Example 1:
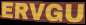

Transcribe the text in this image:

ERVGU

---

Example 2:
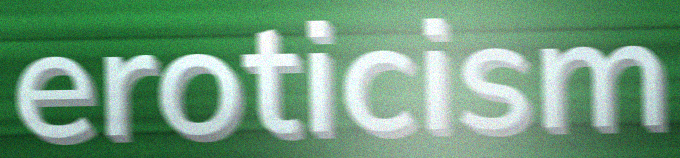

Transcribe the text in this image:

eroticism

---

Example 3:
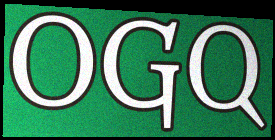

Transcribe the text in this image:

OGQ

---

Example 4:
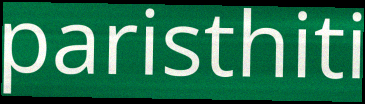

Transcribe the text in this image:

paristhiti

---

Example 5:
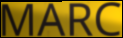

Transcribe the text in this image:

MARC